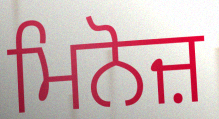
ਮਿਨੋਜ਼